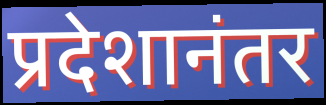
प्रदेशानंतर